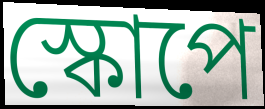
স্কোপে